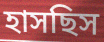
হাসছিস